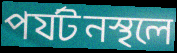
পর্যটনস্থলে